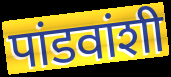
पांडवांशी